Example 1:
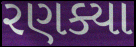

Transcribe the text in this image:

રણક્યા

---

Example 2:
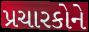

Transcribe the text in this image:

પ્રચારકોને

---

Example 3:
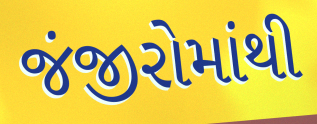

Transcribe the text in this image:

જંજીરોમાંથી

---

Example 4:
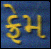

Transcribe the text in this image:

ફ્રેમ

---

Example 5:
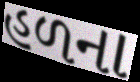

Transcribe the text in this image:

હળના